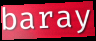
baray